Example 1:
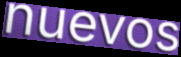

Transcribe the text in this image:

nuevos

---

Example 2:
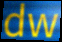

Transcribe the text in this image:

dw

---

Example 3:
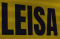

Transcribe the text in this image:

LEISA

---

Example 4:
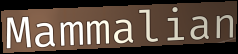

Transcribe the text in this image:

Mammalian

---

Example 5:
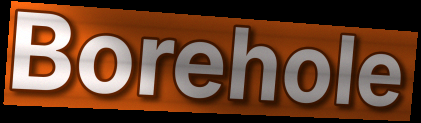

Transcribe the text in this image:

Borehole